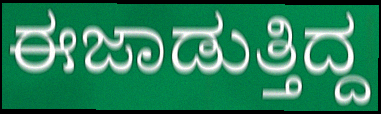
ಈಜಾಡುತ್ತಿದ್ದ